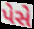
પેસે